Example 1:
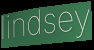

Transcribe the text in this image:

lindsey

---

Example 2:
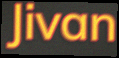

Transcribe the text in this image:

Jivan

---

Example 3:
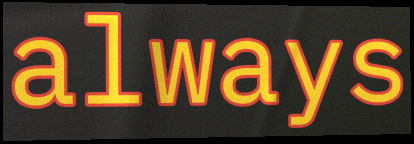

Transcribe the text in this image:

always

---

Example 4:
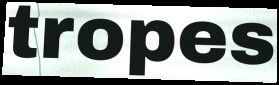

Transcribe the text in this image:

tropes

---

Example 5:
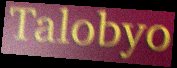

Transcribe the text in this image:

Talobyo